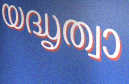
യദ്ധൃത്വാ